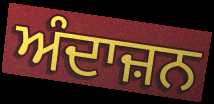
ਅੰਦਾਜ਼ਨ